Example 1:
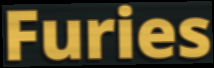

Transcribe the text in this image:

Furies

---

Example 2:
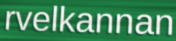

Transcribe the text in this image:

rvelkannan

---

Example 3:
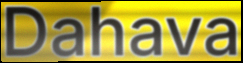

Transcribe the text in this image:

Dahava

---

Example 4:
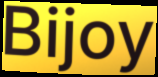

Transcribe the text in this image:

Bijoy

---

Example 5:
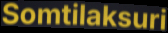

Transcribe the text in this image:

Somtilaksuri